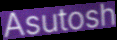
Asutosh